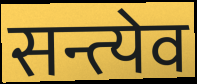
सन्त्येव